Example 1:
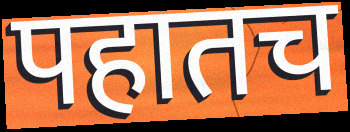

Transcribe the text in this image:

पहातच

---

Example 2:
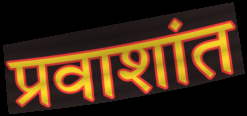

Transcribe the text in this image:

प्रवाशांत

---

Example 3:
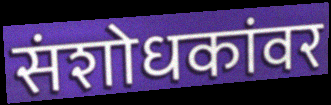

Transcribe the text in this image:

संशोधकांवर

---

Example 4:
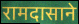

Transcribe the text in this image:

रामदासाने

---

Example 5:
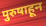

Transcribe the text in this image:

पुरुषाहून